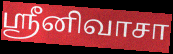
ஸ்ரீனிவாசா